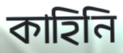
কাহিনি